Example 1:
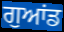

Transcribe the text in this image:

ਗੁਆਂਡ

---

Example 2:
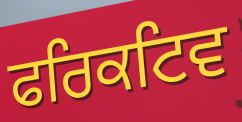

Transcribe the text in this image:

ਫਰਿਕਟਿਵ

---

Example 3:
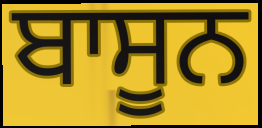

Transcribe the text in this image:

ਬਾਸੂਨ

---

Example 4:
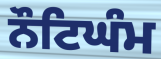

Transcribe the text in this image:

ਨੌਟਿਘੰਮ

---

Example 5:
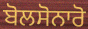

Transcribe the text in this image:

ਬੋਲਸੋਨਾਰੋ